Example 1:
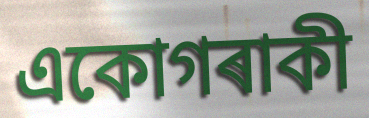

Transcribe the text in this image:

একোগৰাকী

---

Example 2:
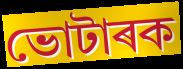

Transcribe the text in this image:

ভোটাৰক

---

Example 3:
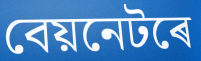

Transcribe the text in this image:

বেয়নেটৰে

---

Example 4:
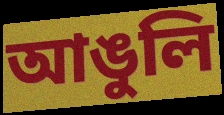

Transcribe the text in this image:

আঙুলি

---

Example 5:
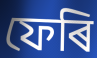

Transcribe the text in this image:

ফেৰি